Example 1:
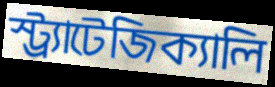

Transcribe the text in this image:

স্ট্র্যাটেজিক্যালি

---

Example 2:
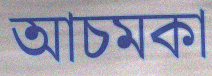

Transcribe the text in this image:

আচমকা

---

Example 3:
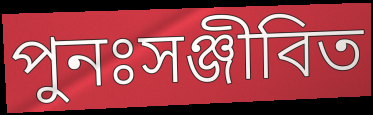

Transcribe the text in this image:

পুনঃসঞ্জীবিত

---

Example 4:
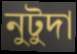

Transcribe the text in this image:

নুটুদা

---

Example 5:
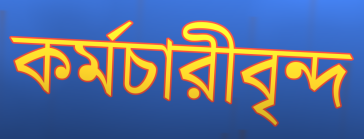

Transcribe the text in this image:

কর্মচারীবৃন্দ